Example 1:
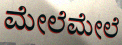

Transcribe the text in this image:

ಮೇಲೆಮೇಲೆ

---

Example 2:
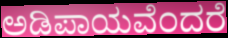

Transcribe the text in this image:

ಅಡಿಪಾಯವೆಂದರೆ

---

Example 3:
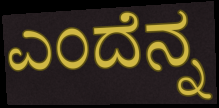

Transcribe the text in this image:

ಎಂದೆನ್ನ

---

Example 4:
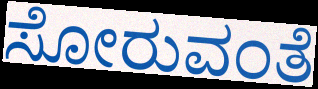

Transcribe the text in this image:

ಸೋರುವಂತೆ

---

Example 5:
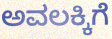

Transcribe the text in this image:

ಅವಲಕ್ಕಿಗೆ